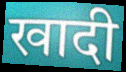
खादी